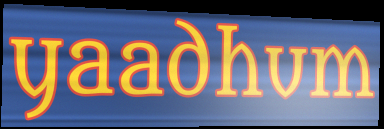
yaadhum